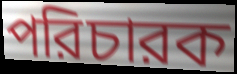
পরিচারক